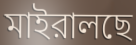
মাইরালছে